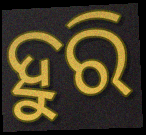
ହୁରି